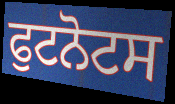
ਫੁਟਨੋਟਸ